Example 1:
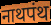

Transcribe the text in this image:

नाथपंथ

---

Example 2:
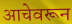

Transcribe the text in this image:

आचेवरून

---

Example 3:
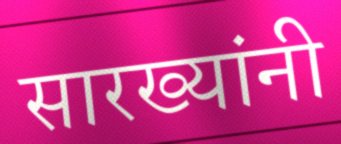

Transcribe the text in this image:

सारख्यांनी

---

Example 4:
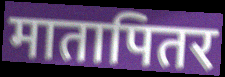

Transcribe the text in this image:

मातापितर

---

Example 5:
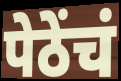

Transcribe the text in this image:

पेठेंचं